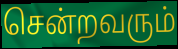
சென்றவரும்